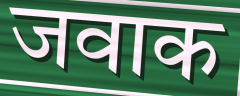
जवाक